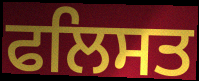
ਫਲਿਸਤ